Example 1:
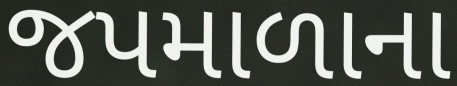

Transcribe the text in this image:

જપમાળાના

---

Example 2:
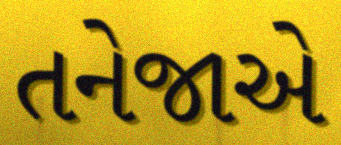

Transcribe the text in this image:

તનેજાએ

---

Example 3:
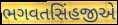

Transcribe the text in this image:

ભગવતસિંહજીએ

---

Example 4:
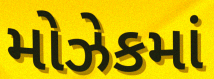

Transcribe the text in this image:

મોઝેકમાં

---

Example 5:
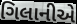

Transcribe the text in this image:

ગિલાનીએ